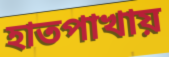
হাতপাখায়